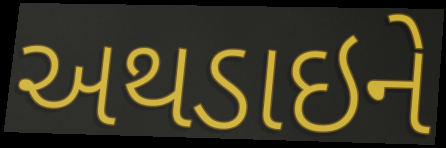
અથડાઇને